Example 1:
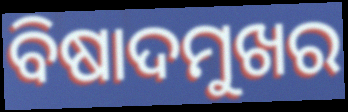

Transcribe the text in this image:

ବିଷାଦମୁଖର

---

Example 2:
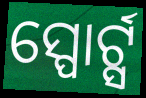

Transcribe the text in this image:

ସ୍ପୋର୍ଟ୍ସ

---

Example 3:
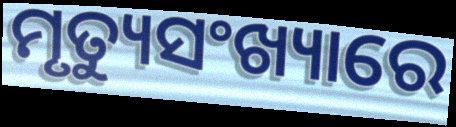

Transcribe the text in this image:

ମୃତ୍ୟୁସଂଖ୍ୟାରେ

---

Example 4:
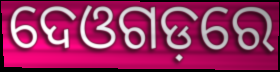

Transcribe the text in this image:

ଦେଓଗଡ଼ରେ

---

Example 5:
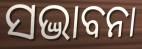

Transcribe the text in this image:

ସଦ୍ଭାବନା